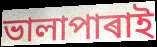
ভালাপাৰাই